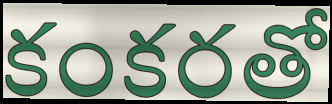
కంకరతో